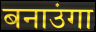
बनाउंगा